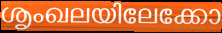
ശൃംഖലയിലേക്കോ